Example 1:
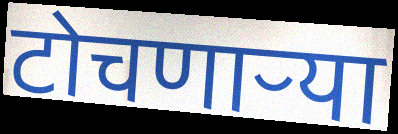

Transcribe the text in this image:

टोचणाऱ्या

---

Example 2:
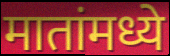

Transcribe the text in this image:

मातांमध्ये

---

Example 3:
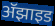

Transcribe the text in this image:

ॲझाइड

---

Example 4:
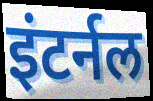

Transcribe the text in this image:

इंटर्नल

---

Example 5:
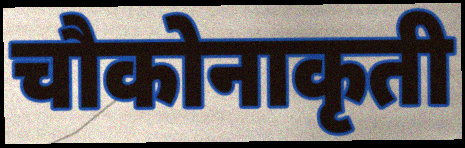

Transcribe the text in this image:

चौकोनाकृती